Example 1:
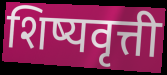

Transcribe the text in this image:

शिष्यवृत्ती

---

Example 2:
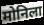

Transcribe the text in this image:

मोनिला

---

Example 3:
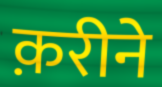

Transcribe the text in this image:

क़रीने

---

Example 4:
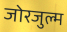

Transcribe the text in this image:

जोरजुल्म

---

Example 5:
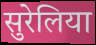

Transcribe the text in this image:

सुरेलिया